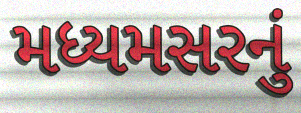
મધ્યમસરનું